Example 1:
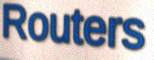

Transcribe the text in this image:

Routers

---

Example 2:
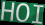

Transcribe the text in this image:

HOI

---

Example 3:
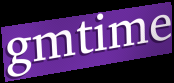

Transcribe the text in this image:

gmtime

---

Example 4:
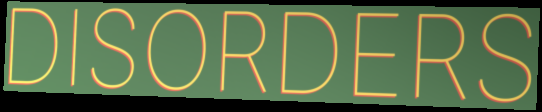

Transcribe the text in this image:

DISORDERS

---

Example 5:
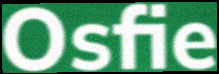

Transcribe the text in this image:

Osfie